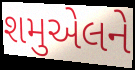
શમુએલને